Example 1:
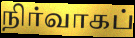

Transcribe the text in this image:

நிர்வாகப்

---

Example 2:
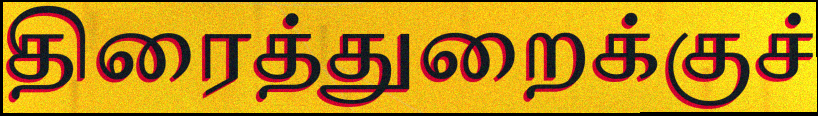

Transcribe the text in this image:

திரைத்துறைக்குச்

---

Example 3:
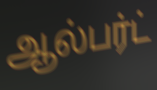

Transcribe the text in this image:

ஆல்பர்ட்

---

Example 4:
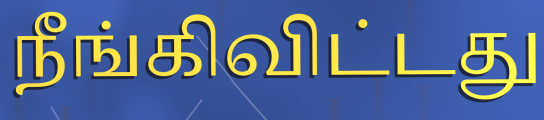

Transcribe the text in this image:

நீங்கிவிட்டது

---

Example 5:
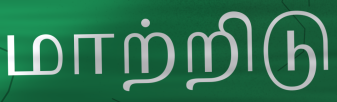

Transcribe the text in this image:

மாற்றிடு